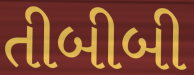
તીબીબી